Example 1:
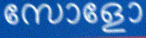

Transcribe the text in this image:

സോളോ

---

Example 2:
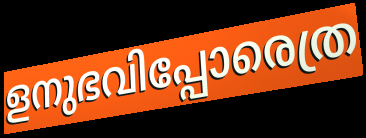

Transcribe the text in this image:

ളനുഭവിപ്പോരെത്ര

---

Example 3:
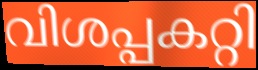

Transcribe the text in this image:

വിശപ്പകറ്റി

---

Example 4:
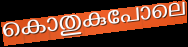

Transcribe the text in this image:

കൊതുകുപോലെ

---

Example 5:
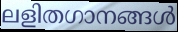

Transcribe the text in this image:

ലളിതഗാനങ്ങൾ